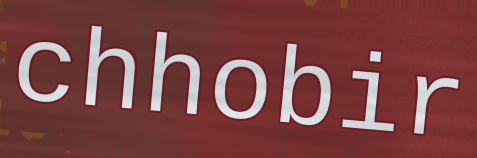
chhobir